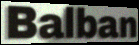
Balban